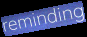
reminding